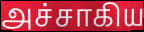
அச்சாகிய